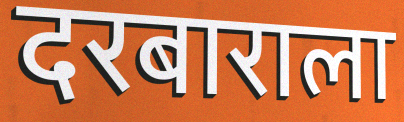
दरबाराला